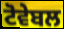
ਟੋਵੇਬਲ